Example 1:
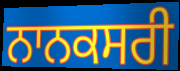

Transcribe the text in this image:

ਨਾਨਕਸਰੀ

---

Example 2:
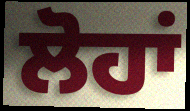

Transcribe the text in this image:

ਲੋਹਾਂ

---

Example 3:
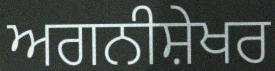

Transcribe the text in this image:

ਅਗਨੀਸ਼ੇਖਰ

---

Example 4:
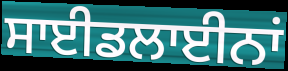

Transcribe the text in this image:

ਸਾਈਡਲਾਈਨਾਂ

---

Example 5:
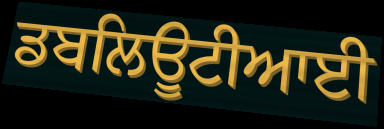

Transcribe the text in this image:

ਡਬਲਿਊਟੀਆਈ